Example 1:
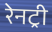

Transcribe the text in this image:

रेनट्री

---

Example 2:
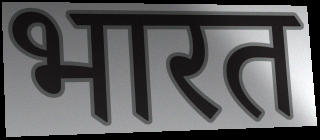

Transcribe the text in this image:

भारत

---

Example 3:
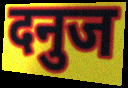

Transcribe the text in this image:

दनुज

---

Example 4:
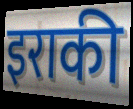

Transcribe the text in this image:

इराकी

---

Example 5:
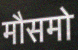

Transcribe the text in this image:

मौसमो